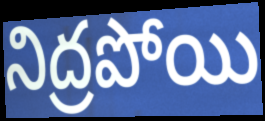
నిద్రపోయి